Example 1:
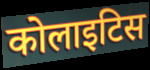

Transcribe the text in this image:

कोलाइटिस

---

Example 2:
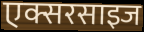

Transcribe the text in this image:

एक्सरसाइज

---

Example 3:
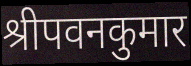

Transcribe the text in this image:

श्रीपवनकुमार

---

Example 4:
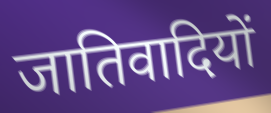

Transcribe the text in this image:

जातिवादियों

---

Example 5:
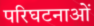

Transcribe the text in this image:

परिघटनाओं